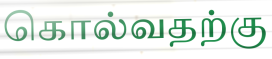
கொல்வதற்கு